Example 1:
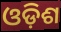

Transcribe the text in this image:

ଓଡ଼ିଶ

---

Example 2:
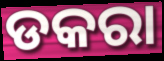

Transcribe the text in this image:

ଡକରା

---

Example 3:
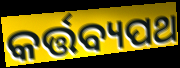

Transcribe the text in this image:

କର୍ତ୍ତବ୍ୟପଥ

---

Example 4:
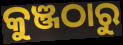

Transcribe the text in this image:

କୁଞ୍ଜଠାରୁ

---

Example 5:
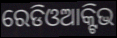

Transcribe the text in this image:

ରେଡିଓଆକ୍ଟିଭ